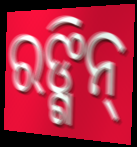
ରଙ୍ଗିନ୍